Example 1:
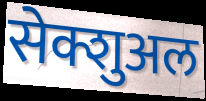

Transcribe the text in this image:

सेक्शुअल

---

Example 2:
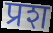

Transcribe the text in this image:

प्रश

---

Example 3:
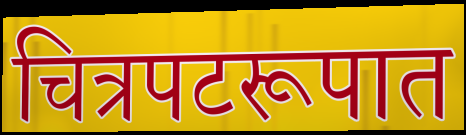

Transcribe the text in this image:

चित्रपटरूपात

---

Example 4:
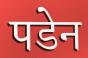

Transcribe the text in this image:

पडेन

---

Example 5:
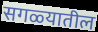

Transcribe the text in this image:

सगळ्यातील